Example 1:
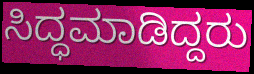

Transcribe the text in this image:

ಸಿದ್ಧಮಾಡಿದ್ದರು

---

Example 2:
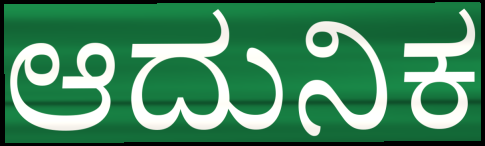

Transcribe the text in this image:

ಆದುನಿಕ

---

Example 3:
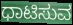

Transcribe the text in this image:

ಧಾಟಿಸುವ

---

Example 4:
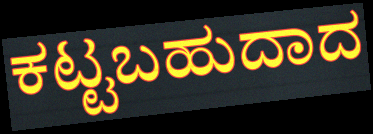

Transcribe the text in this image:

ಕಟ್ಟಬಹುದಾದ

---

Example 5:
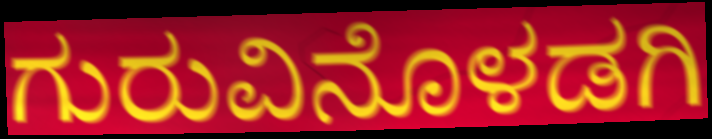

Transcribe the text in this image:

ಗುರುವಿನೊಳಡಗಿ